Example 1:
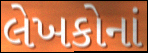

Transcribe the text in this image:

લેખકોનાં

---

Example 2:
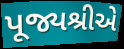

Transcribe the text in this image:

પૂજ્યશ્રીએ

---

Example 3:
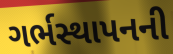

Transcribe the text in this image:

ગર્ભસ્થાપનની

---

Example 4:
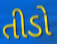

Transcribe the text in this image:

તીડો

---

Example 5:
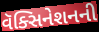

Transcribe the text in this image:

વૅક્સિનેશનની